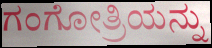
ಗಂಗೋತ್ರಿಯನ್ನು